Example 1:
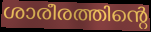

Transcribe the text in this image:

ശാരീരത്തിന്റെ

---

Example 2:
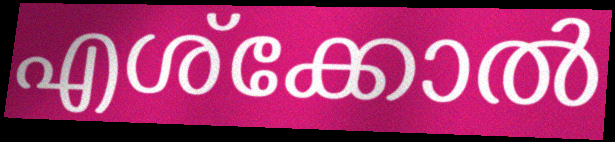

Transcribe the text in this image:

എശ്ക്കോൽ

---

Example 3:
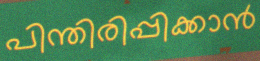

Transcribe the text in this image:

പിന്തിരിപ്പിക്കാൻ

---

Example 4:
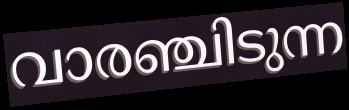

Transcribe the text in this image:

വാരഞ്ചിടുന്ന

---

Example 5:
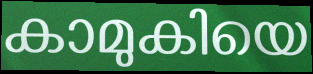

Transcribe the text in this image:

കാമുകിയെ